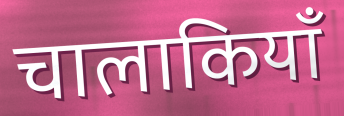
चालाकियाँ